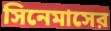
সিনেমাসের